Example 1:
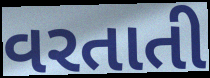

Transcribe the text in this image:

વરતાતી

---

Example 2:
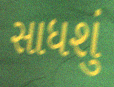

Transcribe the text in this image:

સાધશું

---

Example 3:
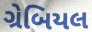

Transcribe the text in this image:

ગ્રેબિયલ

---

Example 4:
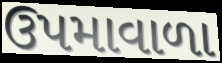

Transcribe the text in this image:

ઉપમાવાળા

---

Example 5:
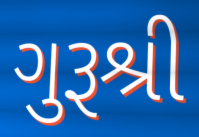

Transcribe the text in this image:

ગુરૂશ્રી